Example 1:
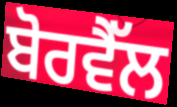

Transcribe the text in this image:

ਬੋਰਵੈੱਲ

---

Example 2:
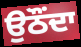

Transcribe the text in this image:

ਉਠੌਂਦਾ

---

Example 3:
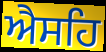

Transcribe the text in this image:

ਐਸਹਿ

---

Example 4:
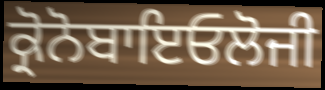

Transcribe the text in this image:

ਕ੍ਰੋਨੋਬਾਇਓਲੋਜੀ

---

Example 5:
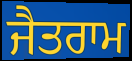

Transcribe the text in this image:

ਜੈਤਰਾਮ